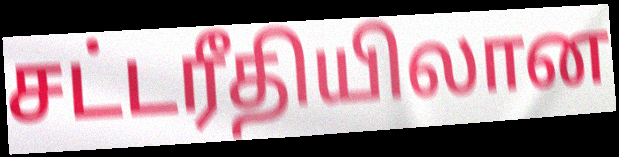
சட்டரீதியிலான